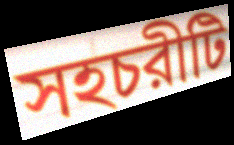
সহচরীটি